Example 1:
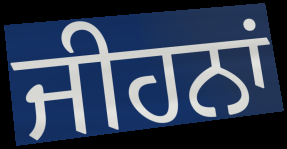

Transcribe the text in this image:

ਜੀਹਨਾਂ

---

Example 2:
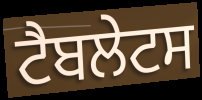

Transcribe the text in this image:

ਟੈਬਲੇਟਸ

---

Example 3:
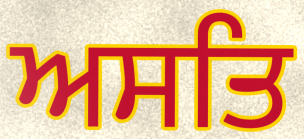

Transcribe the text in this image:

ਅਸਤਿ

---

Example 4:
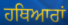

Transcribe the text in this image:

ਹਥਿਆਰਾਂ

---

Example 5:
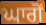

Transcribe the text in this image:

ਘਾਗੋਂ